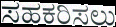
ಸಹಕರಿಸಲು